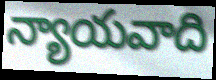
న్యాయవాది